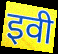
इवी